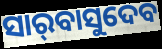
ସାର୍‌ବାସୁଦେବ